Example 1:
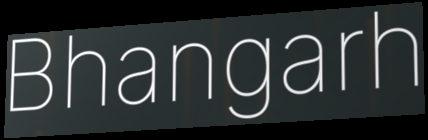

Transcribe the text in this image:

Bhangarh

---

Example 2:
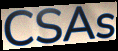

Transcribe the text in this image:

CSAs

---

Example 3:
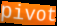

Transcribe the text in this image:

pivot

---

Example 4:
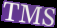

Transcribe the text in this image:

TMS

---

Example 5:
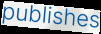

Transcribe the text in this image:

publishes